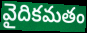
వైదికమతం